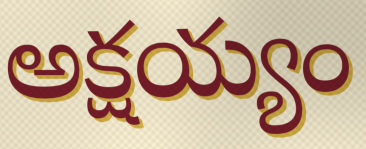
అక్షయ్యం